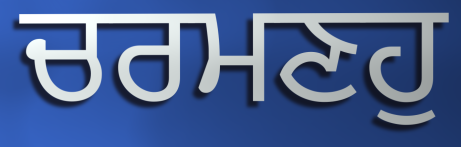
ਚਰਮਣਹੁ